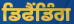
ਡਿਫੈਂਡਿੰਗ